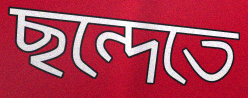
ছন্দেতে